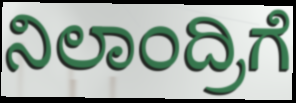
ನಿಲಾಂದ್ರಿಗೆ